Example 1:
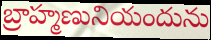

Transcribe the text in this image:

బ్రాహ్మణునియందును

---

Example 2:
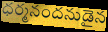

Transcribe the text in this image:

ధర్మనందనుడైన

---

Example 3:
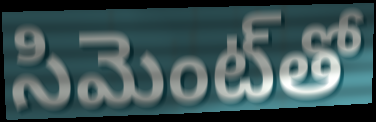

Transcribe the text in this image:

సిమెంట్‌తో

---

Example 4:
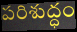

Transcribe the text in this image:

పరిశుద్ధం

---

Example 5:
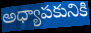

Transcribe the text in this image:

అధ్యాపకునికి